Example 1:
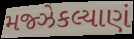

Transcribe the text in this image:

મજ્ઝેકલ્યાણં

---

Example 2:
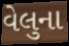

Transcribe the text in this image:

વેલુના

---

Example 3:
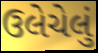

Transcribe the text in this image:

ઉલેચેલું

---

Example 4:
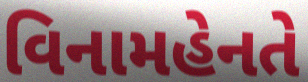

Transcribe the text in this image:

વિનામહેનતે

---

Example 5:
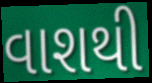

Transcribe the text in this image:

વાશથી